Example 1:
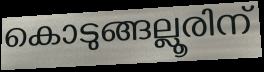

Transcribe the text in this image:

കൊടുങ്ങല്ലൂരിന്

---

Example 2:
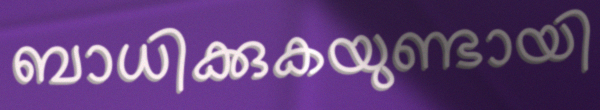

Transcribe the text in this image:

ബാധിക്കുകയുണ്ടായി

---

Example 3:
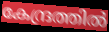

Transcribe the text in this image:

കേന്ദ്രത്തിൽ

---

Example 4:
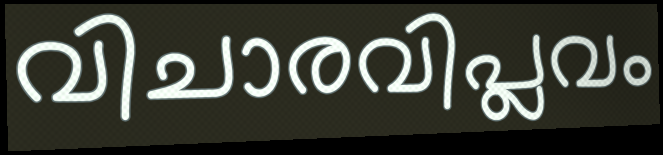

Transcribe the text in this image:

വിചാരവിപ്ലവം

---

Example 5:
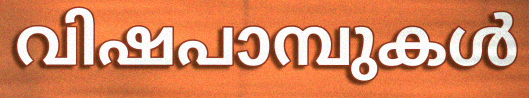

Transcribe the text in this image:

വിഷപാമ്പുകൾ